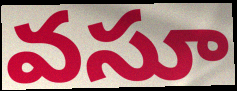
వసూ